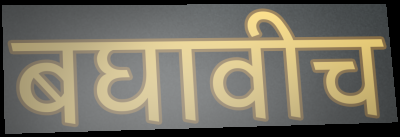
बघावीच